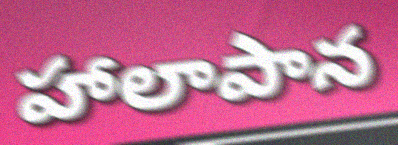
హాలాపాన